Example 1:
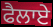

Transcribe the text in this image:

ਫੈਲਾਏ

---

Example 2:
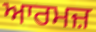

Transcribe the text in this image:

ਆਰਮਜ਼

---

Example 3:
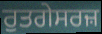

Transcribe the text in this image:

ਰੁਤਗੇਸਰਜ਼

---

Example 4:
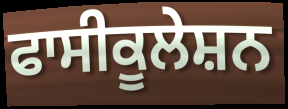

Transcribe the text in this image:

ਫਾਸੀਕੂਲੇਸ਼ਨ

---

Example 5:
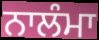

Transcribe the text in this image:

ਨਾਲੰਮਾ